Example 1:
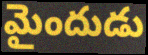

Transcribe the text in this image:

మైందుడు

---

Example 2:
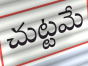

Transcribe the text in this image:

చుట్టమే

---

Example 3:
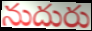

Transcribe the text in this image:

నుదురు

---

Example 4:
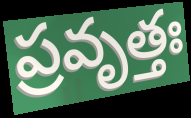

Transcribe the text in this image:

ప్రవృత్తః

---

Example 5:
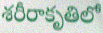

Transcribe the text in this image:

శరీరాకృతిలో